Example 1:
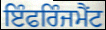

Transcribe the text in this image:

ਇੰਫਰਿੰਜਮੈਂਟ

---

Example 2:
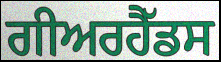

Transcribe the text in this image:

ਗੀਅਰਹੈੱਡਸ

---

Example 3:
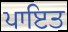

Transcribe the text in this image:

ਪਾਇਤ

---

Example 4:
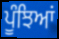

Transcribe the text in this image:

ਪੂੰਝਿਆਂ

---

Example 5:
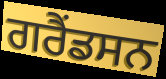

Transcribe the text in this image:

ਗਰੈਂਡਸਨ